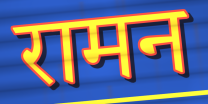
रामन